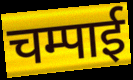
चम्‍पाई